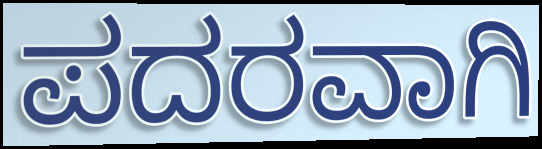
ಪದರವಾಗಿ